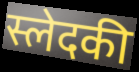
स्लेदकी